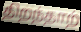
திறந்தாற்